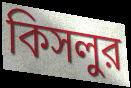
কিসলুর